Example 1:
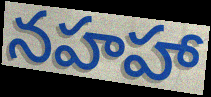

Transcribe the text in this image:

నహహా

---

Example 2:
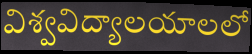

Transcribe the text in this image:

విశ్వవిద్యాలయాలలో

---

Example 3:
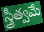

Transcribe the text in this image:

స్త్రీత్వమే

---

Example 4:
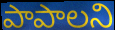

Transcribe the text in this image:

పాపాలని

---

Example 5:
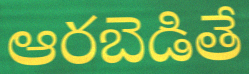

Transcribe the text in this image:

ఆరబెడితే